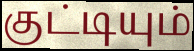
குட்டியும்